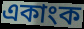
একাংক